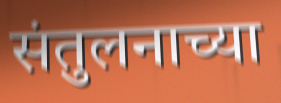
संतुलनाच्या